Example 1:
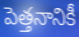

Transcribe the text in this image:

పెత్తనానికీ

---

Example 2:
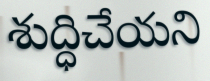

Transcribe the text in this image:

శుద్ధిచేయని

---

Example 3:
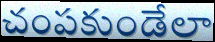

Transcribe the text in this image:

చంపకుండేలా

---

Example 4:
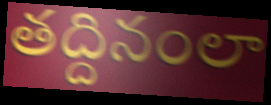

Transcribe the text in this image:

తద్దినంలా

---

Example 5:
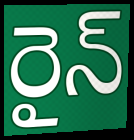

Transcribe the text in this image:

రైన్